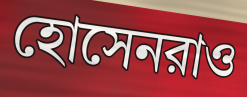
হোসেনরাও